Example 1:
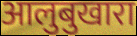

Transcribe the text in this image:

आलुबुखारा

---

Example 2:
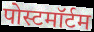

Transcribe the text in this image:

पोस्टमॉर्टम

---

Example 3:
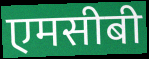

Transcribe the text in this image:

एमसीबी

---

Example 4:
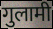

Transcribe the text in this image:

गुलामी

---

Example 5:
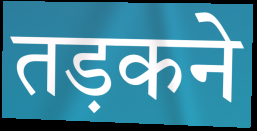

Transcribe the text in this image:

तड़कने